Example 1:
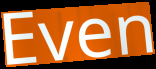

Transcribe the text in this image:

Even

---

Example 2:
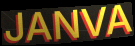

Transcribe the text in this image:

JANVA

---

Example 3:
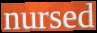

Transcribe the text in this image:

nursed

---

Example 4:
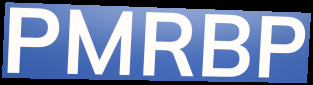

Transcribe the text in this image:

PMRBP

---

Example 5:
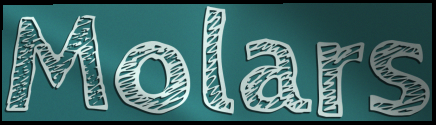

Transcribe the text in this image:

Molars